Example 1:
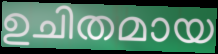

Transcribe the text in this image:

ഉചിതമായ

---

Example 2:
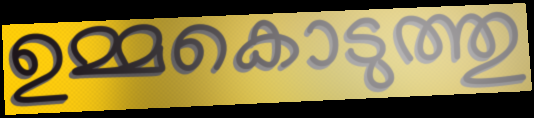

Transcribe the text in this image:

ഉമ്മകൊടുത്തു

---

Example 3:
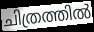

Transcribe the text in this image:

ചിത്രത്തിൽ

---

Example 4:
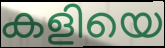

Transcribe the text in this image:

കളിയെ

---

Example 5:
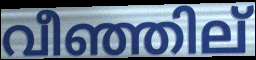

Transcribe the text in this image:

വീഞ്ഞില്